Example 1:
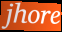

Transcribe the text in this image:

jhore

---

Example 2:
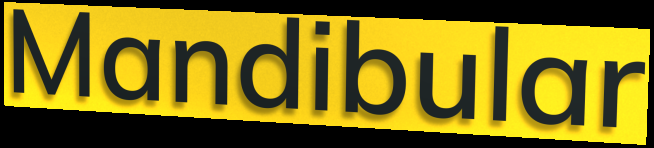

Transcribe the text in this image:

Mandibular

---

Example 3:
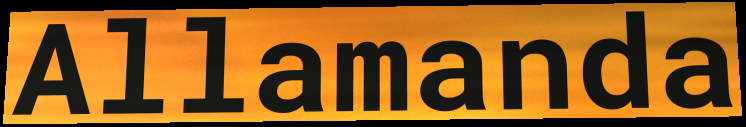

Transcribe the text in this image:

Allamanda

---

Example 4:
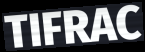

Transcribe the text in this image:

TIFRAC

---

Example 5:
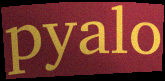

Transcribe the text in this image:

pyalo